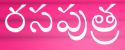
రసపుత్ర